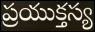
ప్రయుక్తస్య